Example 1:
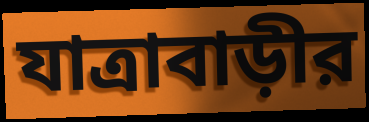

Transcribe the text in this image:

যাত্রাবাড়ীর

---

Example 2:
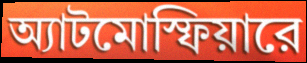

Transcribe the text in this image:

অ্যাটমোস্ফিয়ারে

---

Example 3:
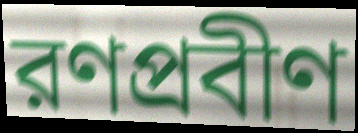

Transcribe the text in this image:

রণপ্রবীণ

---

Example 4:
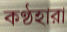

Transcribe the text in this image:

কণ্ঠহারা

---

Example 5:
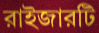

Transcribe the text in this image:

রাইজারটি